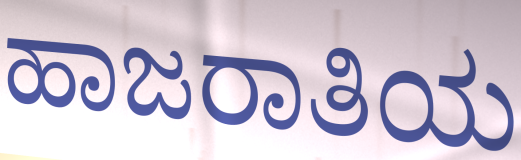
ಹಾಜರಾತಿಯ